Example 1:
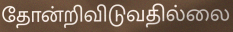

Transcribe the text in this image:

தோன்றிவிடுவதில்லை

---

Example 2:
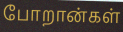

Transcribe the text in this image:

போறான்கள்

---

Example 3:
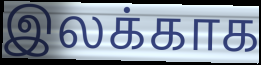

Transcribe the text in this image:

இலக்காக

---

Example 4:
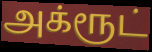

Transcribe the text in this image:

அக்ரூட்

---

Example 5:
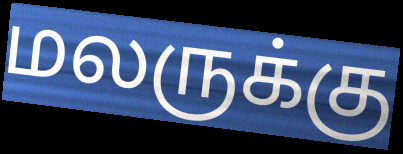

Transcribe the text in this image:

மலருக்கு